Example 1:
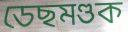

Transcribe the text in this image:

ডেছমণ্ডক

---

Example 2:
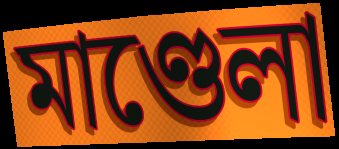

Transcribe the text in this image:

মাণ্ডেলা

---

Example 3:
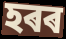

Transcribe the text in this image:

হৰৰ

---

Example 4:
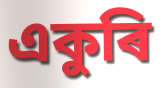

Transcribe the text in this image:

একুৰি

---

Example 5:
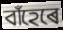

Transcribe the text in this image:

বাঁহেৰে